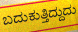
ಬದುಕುತ್ತಿದ್ದುದು